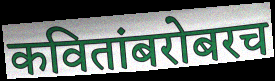
कवितांबरोबरच